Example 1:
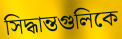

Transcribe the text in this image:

সিদ্ধান্তগুলিকে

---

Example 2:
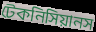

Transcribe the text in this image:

টেকনিসিয়ানস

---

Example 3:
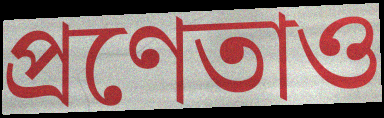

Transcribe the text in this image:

প্রণেতাও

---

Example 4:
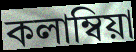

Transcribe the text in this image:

কলাম্বিয়া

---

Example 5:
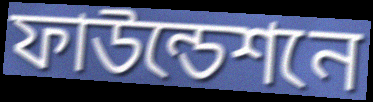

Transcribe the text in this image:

ফাউন্ডেশনে